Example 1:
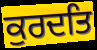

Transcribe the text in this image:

ਕੁਰਦਤਿ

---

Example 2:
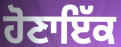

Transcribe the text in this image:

ਹੋਣਾਇੱਕ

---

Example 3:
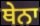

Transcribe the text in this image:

ਥੇਨਾ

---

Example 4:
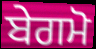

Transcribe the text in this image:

ਬੇਗਮੋ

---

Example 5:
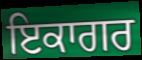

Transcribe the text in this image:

ਇਕਾਗਰ